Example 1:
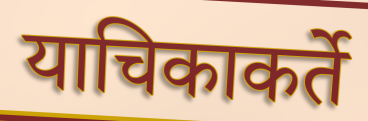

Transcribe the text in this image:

याचिकाकर्ते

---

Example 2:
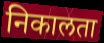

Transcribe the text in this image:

निकालता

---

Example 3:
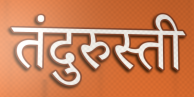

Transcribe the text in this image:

तंदुरुस्ती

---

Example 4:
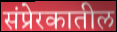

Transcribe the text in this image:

संप्रेरकातील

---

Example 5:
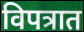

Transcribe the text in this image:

विपत्रात